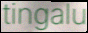
tingalu